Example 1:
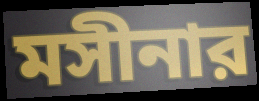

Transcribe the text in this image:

মসীনার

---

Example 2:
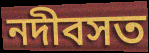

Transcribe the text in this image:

নদীবসত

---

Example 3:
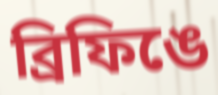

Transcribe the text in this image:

ব্রিফিঙে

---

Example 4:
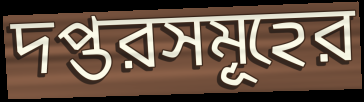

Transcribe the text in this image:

দপ্তরসমূহের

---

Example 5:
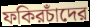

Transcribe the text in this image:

ফকিরচাঁদের